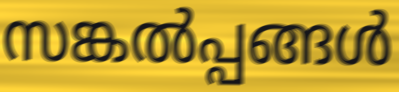
സങ്കൽപ്പങ്ങൾ